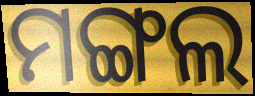
ମଙ୍ଗଲ